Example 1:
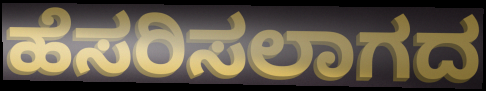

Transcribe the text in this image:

ಹೆಸರಿಸಲಾಗದ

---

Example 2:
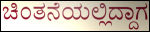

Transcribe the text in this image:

ಚಿಂತನೆಯಲ್ಲಿದ್ದಾಗ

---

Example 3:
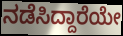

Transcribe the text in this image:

ನಡೆಸಿದ್ದಾರೆಯೇ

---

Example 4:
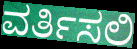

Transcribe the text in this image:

ವರ್ತಿಸಲಿ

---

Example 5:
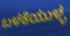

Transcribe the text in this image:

ಬಳಕೆಯುಳ್ಳ